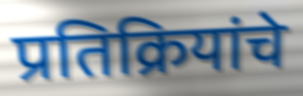
प्रतिक्रियांचे